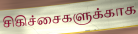
சிகிச்சைகளுக்காக